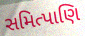
સમિત્પાણિ